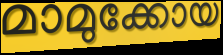
മാമുക്കോയ